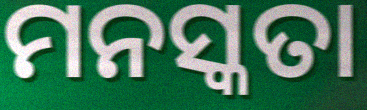
ମନସ୍କତା